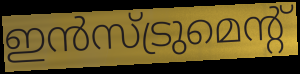
ഇൻസ്ട്രുമെന്റ്